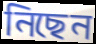
নিছেন